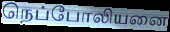
நெப்போலியனை